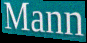
Mann